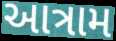
આત્રામ